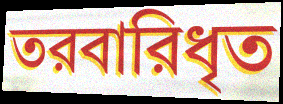
তরবারিধৃত